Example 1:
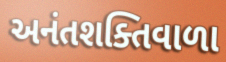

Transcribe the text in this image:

અનંતશક્તિવાળા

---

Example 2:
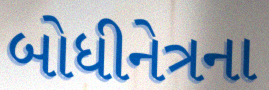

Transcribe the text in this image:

બોધીનેત્રના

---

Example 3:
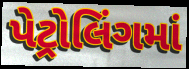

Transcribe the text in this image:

પેટ્રોલિંગમાં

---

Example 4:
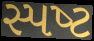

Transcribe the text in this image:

સ્પષ્‍ટ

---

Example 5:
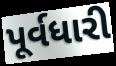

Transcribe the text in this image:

પૂર્વધારી